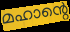
മഹാന്റെ